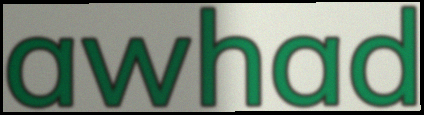
awhad